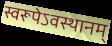
स्वरूपेऽवस्थानम्